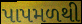
પાપમળથી